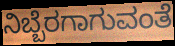
ನಿಬ್ಬೆರಗಾಗುವಂತೆ